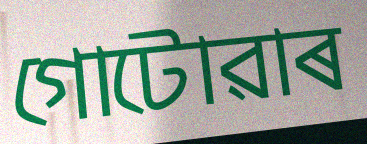
গোটোৱাৰ